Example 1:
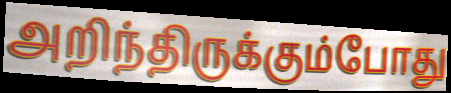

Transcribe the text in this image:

அறிந்திருக்கும்போது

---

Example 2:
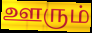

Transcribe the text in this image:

ஊரும்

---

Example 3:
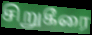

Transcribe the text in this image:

சிறுகீரை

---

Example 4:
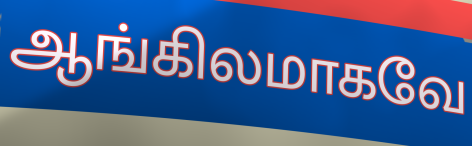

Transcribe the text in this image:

ஆங்கிலமாகவே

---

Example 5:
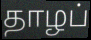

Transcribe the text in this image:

தாழப்